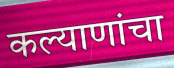
कल्याणांचा